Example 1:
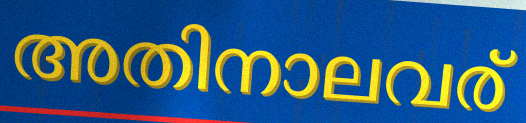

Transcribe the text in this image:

അതിനാലവര്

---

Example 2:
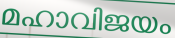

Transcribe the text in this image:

മഹാവിജയം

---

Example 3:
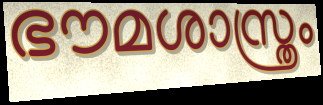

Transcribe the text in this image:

ഭൗമശാസ്ത്രം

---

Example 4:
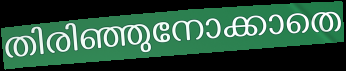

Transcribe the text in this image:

തിരിഞ്ഞുനോക്കാതെ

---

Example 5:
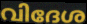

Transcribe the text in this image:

വിദേശ